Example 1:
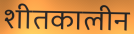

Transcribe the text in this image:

शीतकालीन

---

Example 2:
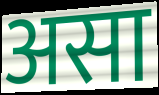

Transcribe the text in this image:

असा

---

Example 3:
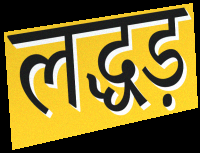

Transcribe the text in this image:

लद्धड़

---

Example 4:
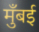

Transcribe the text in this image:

मुँबई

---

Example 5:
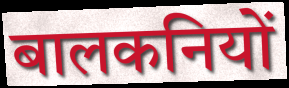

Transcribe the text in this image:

बालकनियों